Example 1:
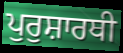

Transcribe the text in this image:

ਪੁਰੁਸ਼ਾਰਥੀ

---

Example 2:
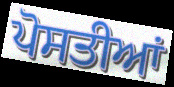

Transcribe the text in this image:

ਪੋਸਤੀਆਂ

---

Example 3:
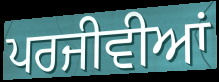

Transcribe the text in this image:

ਪਰਜੀਵੀਆਂ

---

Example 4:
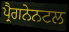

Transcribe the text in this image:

ਪ੍ਰੈਗਨੇਨਟਲ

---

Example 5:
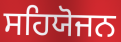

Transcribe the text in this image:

ਸਹਿਯੋਜਨ